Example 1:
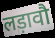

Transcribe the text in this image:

लड़ावौ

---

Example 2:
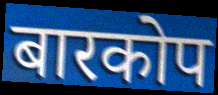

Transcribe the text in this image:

बारकोप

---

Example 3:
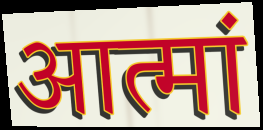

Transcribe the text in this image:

आत्मां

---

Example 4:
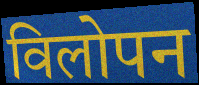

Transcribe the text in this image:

विलोपन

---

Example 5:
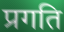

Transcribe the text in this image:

प्रगति